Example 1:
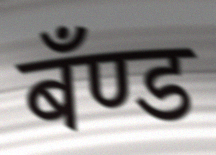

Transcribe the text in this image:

बँण्ड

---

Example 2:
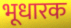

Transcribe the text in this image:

भूधारक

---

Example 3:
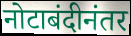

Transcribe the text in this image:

नोटाबंदीनंतर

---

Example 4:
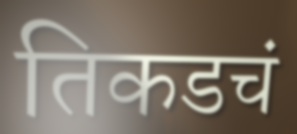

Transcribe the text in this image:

तिकडचं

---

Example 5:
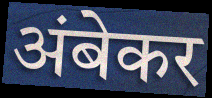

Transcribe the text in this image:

अंबेकर